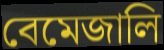
বেমেজালি